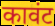
कावंट